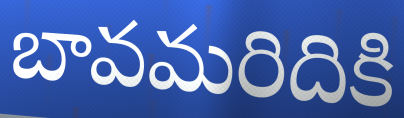
బావమరిదికి